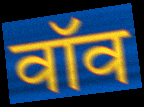
वॉव